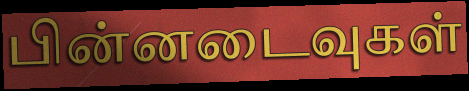
பின்னடைவுகள்